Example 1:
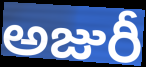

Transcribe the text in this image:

అజురీ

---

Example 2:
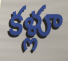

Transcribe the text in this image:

కళ్లూ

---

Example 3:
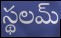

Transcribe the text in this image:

స్థలమ్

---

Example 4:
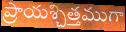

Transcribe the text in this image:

ప్రాయశ్చిత్తముగా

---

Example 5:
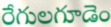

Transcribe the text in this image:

రేగులగూడెం